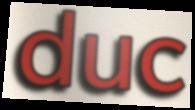
duc